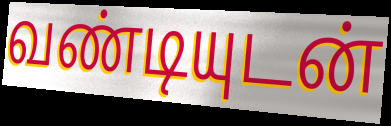
வண்டியுடன்